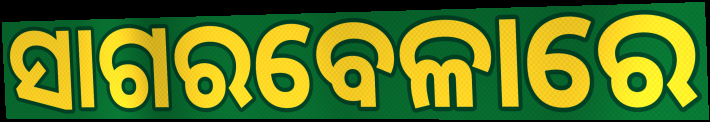
ସାଗରବେଳାରେ